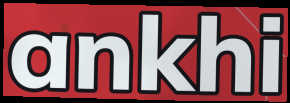
ankhi